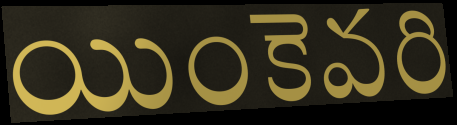
యింకెవరి